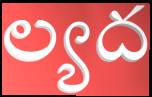
ల్యద